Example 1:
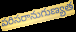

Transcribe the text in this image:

పరిసరానుగుణ్యత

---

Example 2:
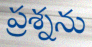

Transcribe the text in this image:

ప్రశ్నను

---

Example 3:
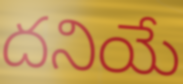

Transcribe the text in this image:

దనియే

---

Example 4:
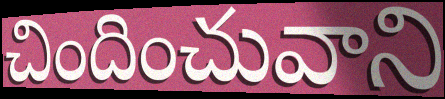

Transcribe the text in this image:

చిందించువాని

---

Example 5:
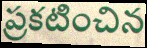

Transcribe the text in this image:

ప్రకటించిన